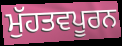
ਮੁੱਹਤਵਪੂਰਨ